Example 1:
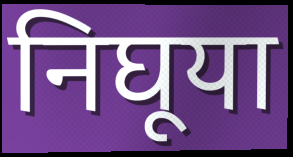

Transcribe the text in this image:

निघूया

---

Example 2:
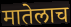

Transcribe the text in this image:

मातेलाच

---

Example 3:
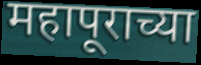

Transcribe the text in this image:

महापूराच्या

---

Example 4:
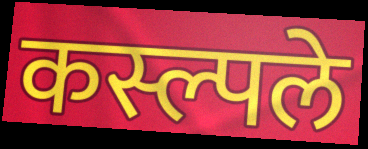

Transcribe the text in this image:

कस्ल्पले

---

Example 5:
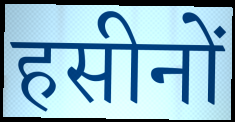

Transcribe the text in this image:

हसीनों